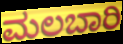
ಮಲಬಾರಿ